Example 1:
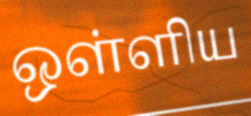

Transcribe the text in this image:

ஒள்ளிய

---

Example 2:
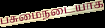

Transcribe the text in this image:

பசுமைநடையாக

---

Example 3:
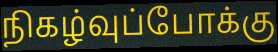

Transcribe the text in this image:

நிகழ்வுப்போக்கு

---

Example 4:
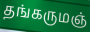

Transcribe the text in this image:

தங்கருமஞ்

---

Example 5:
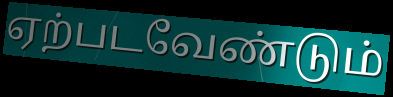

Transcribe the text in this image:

ஏற்படவேண்டும்